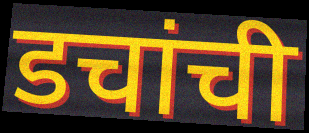
डचांची